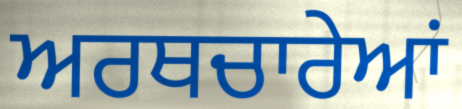
ਅਰਥਚਾਰੇਆਂ